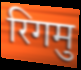
रिगमु